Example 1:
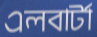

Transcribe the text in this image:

এলবার্টা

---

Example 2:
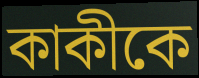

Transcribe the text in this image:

কাকীকে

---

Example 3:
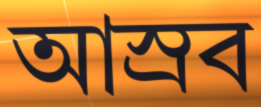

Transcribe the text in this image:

আস্রব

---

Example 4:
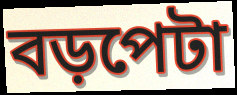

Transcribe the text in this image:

বড়পেটা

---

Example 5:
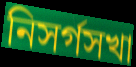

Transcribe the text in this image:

নিসর্গসখা